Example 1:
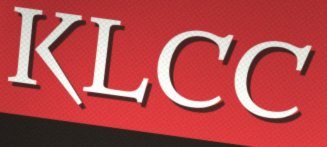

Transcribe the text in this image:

KLCC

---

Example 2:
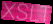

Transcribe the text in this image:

XSLT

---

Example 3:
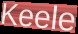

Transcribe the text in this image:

Keele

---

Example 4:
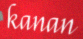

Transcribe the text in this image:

kanan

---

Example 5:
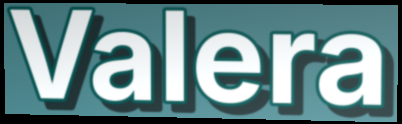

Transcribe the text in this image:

Valera